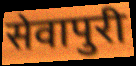
सेवापुरी